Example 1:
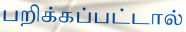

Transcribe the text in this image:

பறிக்கப்பட்டால்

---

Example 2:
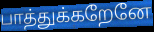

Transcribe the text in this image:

பாத்துக்கறேனே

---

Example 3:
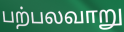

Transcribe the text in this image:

பற்பலவாறு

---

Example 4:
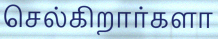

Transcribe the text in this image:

செல்கிறார்களா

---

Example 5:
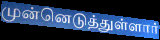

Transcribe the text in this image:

முன்னெடுத்துள்ளார்